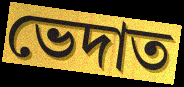
ভেদাত